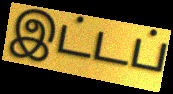
இட்டப்